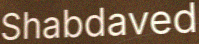
Shabdaved